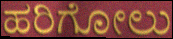
ಹರಿಗೋಲು